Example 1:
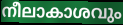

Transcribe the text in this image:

നീലാകാശവും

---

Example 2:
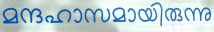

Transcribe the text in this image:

മന്ദഹാസമായിരുന്നു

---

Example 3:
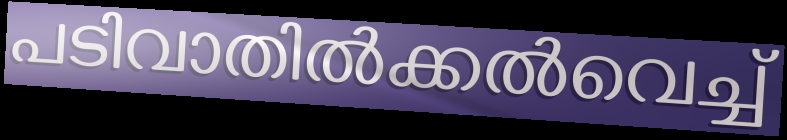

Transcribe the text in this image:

പടിവാതിൽക്കൽവെച്ച്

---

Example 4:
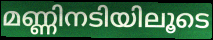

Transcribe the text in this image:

മണ്ണിനടിയിലൂടെ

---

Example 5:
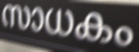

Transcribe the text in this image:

സാധകം